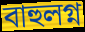
বাহুলগ্ন